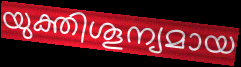
യുക്തിശൂന്യമായ